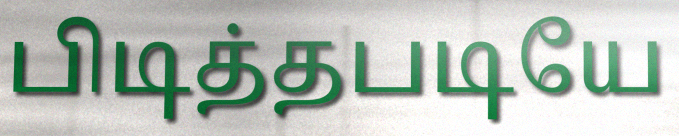
பிடித்தபடியே